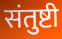
संतुष्टी